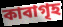
কাবাগৃহ